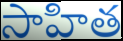
సాహిత